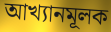
আখ্যানমূলক